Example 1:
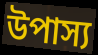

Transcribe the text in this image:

উপাস্য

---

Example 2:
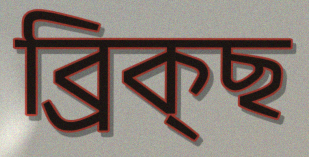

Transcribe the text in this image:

ব্ৰিক্‌ছ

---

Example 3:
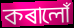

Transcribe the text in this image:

কৰালোঁ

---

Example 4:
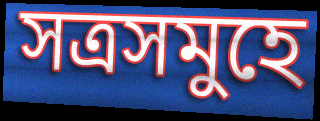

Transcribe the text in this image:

সত্ৰসমুহে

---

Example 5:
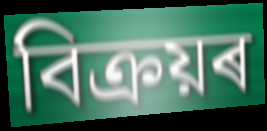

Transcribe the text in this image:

বিক্ৰয়ৰ